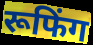
रूफिंग